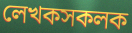
লেখকসকলক